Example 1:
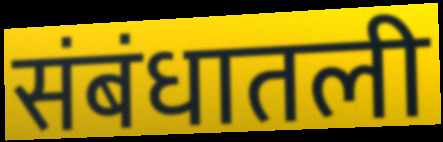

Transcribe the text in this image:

संबंधातली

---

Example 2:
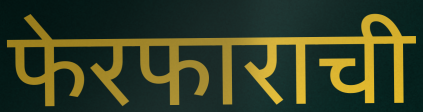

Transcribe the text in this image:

फेरफाराची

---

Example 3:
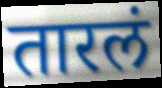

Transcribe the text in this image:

तारलं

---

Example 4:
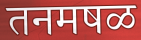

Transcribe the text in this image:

तनमषळ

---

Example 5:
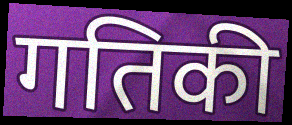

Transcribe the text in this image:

गतिकी